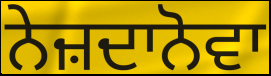
ਨੇਜ਼ਦਾਨੋਵਾ